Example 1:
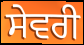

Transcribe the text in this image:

ਸੇਵਰੀ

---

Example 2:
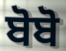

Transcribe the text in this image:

ਬੋਬੋ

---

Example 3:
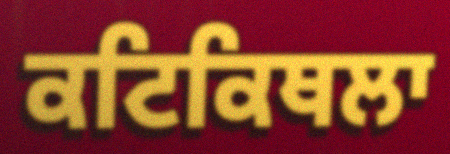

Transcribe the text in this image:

ਕਟਿਕਿਥਲਾ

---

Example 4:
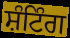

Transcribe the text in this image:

ਸ਼ੰਟਿੰਗ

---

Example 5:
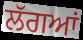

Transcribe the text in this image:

ਲੱਗਆਂ